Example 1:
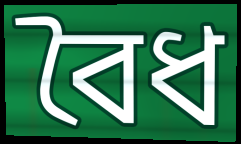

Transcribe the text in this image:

বৈধ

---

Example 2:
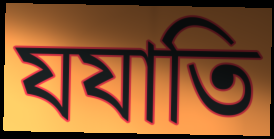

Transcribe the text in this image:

যযাতি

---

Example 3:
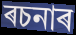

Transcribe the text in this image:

ৰচনাৰ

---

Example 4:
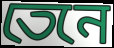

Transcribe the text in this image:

তেনে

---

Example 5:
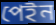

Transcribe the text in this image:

পেইন